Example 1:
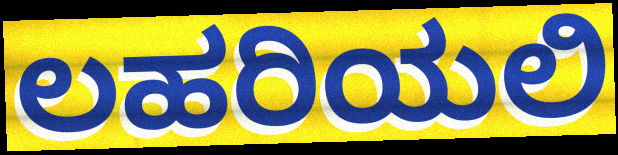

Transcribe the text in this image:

ಲಹರಿಯಲಿ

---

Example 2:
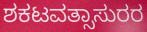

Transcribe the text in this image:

ಶಕಟವತ್ಸಾಸುರರ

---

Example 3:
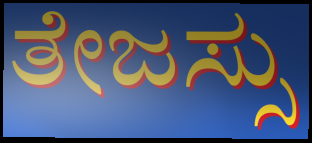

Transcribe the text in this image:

ತೇಜಸ್ಸು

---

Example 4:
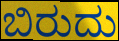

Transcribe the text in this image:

ಬಿರುದು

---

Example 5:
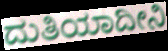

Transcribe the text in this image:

ದುತಿಯಾದೀನಿ